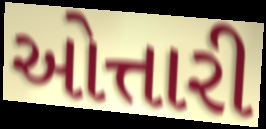
ઓત્તારી